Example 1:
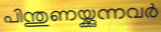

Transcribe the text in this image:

പിന്തുണയ്ക്കുന്നവർ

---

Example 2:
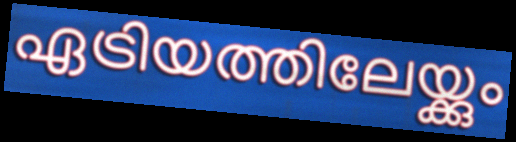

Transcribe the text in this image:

ഏട്രിയത്തിലേയ്ക്കും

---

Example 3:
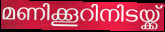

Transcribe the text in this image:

മണിക്കൂറിനിടയ്ക്ക്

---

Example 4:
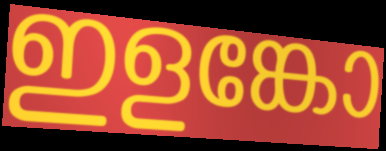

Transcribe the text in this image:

ഇളങ്കോ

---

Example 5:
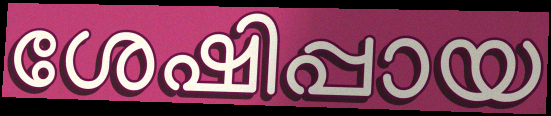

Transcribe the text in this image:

ശേഷിപ്പായ